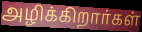
அழிக்கிறார்கள்